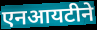
एनआयटीने